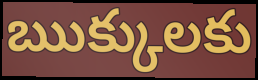
ఋక్కులకు